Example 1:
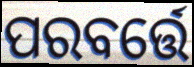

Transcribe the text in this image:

ପରବର୍ତ୍ତେ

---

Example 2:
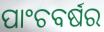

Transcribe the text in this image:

ପାଂଚବର୍ଷର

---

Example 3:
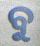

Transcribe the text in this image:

ବୁ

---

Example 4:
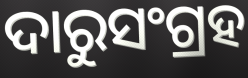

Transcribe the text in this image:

ଦାରୁସଂଗ୍ରହ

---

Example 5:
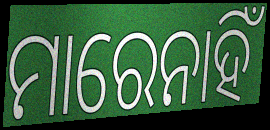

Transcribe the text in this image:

ମାରେନାହିଁ